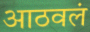
आठवलं